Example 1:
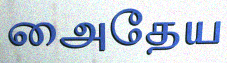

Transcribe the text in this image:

அைதேய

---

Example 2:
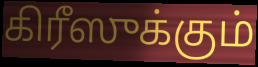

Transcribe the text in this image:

கிரீஸுக்கும்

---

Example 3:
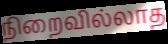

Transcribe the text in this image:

நிறைவில்லாத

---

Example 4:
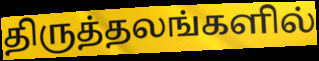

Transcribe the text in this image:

திருத்தலங்களில்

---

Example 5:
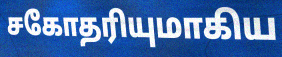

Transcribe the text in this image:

சகோதரியுமாகிய